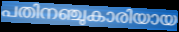
പതിനഞ്ചുകാരിയായ